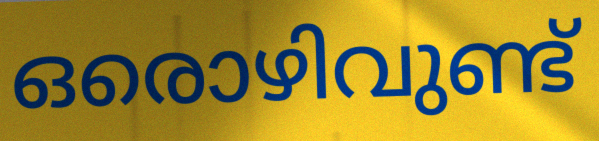
ഒരൊഴിവുണ്ട്